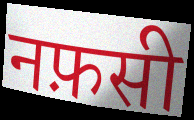
नफ़सी